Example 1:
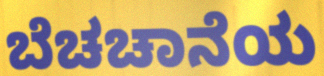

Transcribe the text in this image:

ಬೆಚಚಾನೆಯ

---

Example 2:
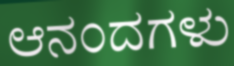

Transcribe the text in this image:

ಆನಂದಗಳು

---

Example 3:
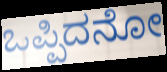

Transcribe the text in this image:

ಒಪ್ಪಿದನೋ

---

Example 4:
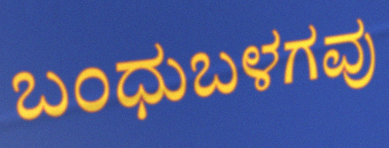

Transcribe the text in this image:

ಬಂಧುಬಳಗವು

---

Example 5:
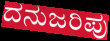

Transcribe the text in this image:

ದನುಜರಿಪು